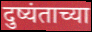
दुष्यंताच्या